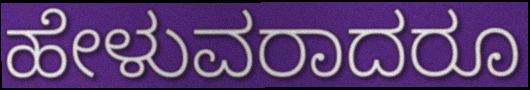
ಹೇಳುವರಾದರೂ